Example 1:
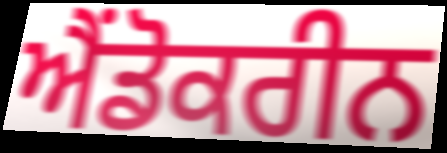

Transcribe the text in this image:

ਐਂਡੋਕਰੀਨ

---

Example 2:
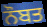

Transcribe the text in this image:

ਨੌਬਤ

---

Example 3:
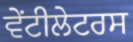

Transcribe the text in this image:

ਵੇਂਟੀਲੇਟਰਸ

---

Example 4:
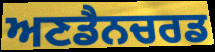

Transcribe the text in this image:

ਅਣਡੈਨਚਰਡ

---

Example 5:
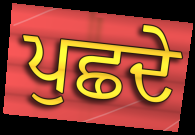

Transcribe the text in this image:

ਪੁਛਦੇ